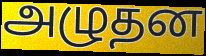
அழுதன